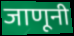
जाणूनी